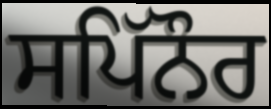
ਸਪਿੱਨੌਰ